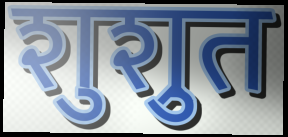
शुश्रुत